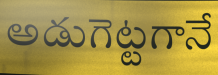
అడుగెట్టగానే